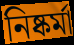
নিষ্কর্মা